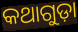
କଥାଗୁଡ଼ା